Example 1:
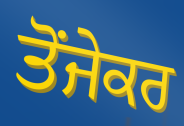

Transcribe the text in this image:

ਤੋਂਜੇਕਰ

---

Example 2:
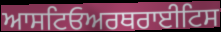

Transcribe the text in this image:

ਆਸਟਿਓਅਰਥਰਾਈਟਿਸ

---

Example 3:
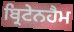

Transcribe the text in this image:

ਬ੍ਰਿਟੇਨਹੈਮ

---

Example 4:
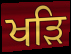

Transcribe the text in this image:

ਖੜਿ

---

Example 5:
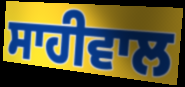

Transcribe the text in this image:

ਸਾਹੀਵਾਲ